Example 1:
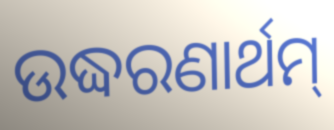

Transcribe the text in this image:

ଉଦ୍ଧରଣାର୍ଥମ୍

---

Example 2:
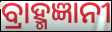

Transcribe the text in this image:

ବ୍ରାହ୍ମଜ୍ଞାନୀ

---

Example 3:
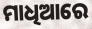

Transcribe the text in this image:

ମାଧିଆରେ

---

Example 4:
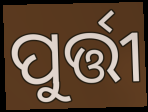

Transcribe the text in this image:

ପୁର୍ତ୍ତୀ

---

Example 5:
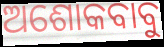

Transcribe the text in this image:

ଅଶୋକବାବୁ